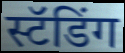
स्टॅडिंग